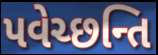
પવેચ્છન્તિ